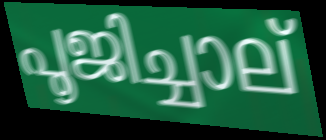
പൂജിച്ചാല്